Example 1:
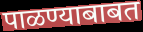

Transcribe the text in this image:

पाळण्याबाबत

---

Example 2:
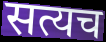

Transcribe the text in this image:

सत्यच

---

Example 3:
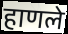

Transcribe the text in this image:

हाणले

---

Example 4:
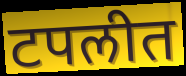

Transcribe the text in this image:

टपलीत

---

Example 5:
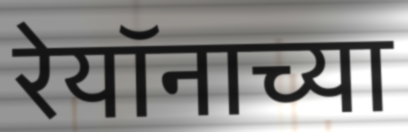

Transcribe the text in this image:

रेयॉनाच्या